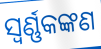
ସ୍ୱର୍ଣ୍ଣକଙ୍କଣ